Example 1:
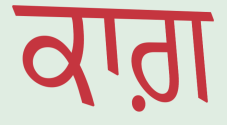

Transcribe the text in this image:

ਕਾਗ਼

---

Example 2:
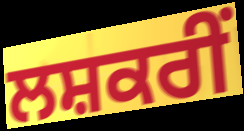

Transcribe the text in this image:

ਲਸ਼ਕਰੀਂ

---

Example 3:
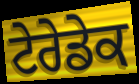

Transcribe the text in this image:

ਟੇਰੇਡੇਕ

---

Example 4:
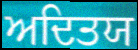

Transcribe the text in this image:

ਅਦਿਤਯ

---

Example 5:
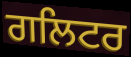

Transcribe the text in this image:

ਗਲਿਟਰ